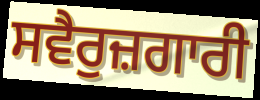
ਸਵੈਰੁਜ਼ਗਾਰੀ